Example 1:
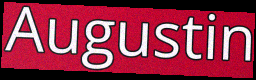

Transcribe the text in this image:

Augustin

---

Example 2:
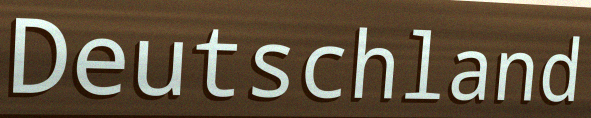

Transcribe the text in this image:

Deutschland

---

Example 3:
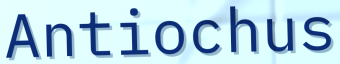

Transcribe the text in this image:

Antiochus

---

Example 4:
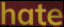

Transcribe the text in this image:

hate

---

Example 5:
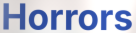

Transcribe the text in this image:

Horrors